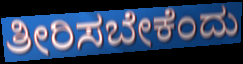
ತೀರಿಸಬೇಕೆಂದು